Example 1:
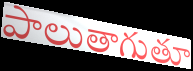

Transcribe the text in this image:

పాలుతాగుతూ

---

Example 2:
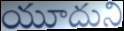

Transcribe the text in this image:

యూదుని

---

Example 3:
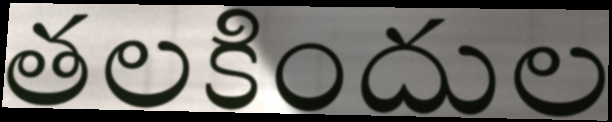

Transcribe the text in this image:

తలకిందుల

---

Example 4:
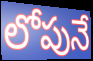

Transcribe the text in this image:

లోపునే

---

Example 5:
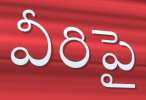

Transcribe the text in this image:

వీరిపై